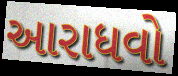
આરાધવો